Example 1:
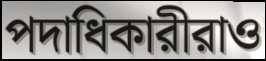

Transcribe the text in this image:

পদাধিকারীরাও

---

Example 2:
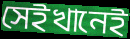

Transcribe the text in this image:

সেইখানেই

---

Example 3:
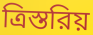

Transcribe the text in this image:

ত্রিস্তরিয়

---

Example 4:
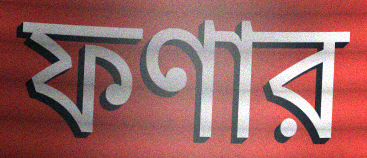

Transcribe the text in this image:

ফণার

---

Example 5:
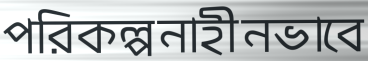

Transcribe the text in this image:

পরিকল্পনাহীনভাবে